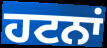
ਹਟਨਾਂ